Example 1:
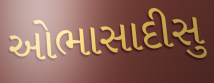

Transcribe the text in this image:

ઓભાસાદીસુ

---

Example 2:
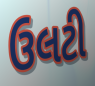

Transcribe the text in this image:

ઉલટી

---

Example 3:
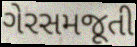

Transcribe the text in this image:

ગેરસમજૂતી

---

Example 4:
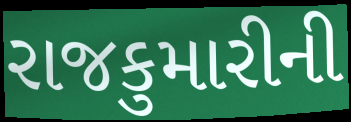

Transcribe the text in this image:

રાજકુમારીની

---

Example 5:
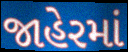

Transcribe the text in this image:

જાહેરમાં